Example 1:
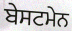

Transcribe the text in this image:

ਬੇਸਟਮੇਨ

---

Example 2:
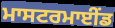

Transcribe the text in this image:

ਮਾਸਟਰਮਾਈੰਡ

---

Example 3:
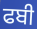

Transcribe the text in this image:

ਫਬੀ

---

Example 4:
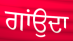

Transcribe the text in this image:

ਗਾਂਉਦਾ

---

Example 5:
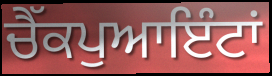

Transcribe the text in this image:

ਚੈੱਕਪੁਆਇੰਟਾਂ